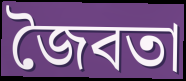
জৈবতা